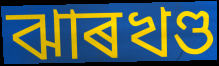
ঝাৰখণ্ড